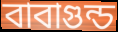
বাবাগুন্ড